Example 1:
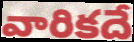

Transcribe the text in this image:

వారికదే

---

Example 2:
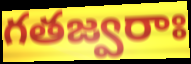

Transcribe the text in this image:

గతజ్వరాః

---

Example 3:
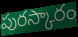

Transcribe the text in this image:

పురస్కారం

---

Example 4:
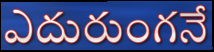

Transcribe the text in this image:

ఎదురుంగనే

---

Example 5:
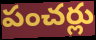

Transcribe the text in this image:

పంచర్లు